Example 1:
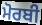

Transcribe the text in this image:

ਮੋਰਬੀ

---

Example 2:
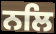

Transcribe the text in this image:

ਨਲਿ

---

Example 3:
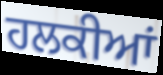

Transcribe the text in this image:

ਹਲਕੀਆਂ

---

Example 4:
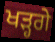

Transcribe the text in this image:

ਖੜ੍ਹਗੇ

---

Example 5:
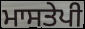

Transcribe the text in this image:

ਮਾਸਤੇਪੀ